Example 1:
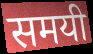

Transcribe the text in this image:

समयी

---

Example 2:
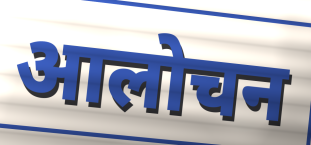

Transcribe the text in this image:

आलोचन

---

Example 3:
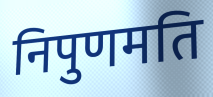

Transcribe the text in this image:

निपुणमति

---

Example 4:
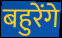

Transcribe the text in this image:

बहुरेंगे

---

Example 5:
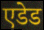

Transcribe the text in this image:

एडेड